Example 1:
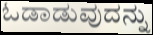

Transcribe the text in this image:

ಓಡಾಡುವುದನ್ನು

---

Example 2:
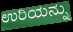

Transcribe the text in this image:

ಉರಿಯನ್ನು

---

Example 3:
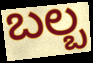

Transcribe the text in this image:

ಬಲ್ಬ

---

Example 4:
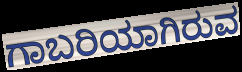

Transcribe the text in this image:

ಗಾಬರಿಯಾಗಿರುವ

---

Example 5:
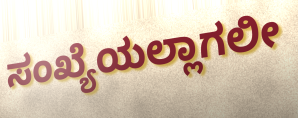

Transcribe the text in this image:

ಸಂಖ್ಯೆಯಲ್ಲಾಗಲೀ